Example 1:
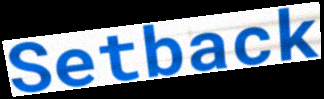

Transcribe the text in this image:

Setback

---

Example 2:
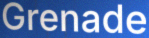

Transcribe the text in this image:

Grenade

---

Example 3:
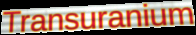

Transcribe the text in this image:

Transuranium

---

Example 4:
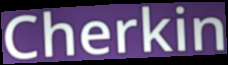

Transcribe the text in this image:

Cherkin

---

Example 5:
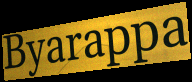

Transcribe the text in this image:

Byarappa